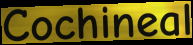
Cochineal